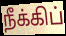
நீக்கிப்